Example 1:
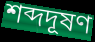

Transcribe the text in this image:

শব্দদূষণ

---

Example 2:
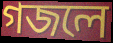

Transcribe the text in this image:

গজলে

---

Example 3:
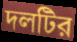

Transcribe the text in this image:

দলটির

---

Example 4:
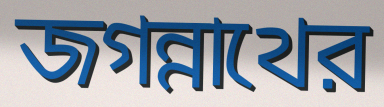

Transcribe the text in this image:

জগন্নাথের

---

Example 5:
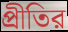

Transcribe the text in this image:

প্রীতির